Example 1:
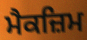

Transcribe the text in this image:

ਮੈਕਜ਼ਿਮ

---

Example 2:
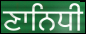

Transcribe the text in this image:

ਣਾਨਿਧੀ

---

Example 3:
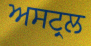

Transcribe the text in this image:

ਅਸਟ੍ਰਲ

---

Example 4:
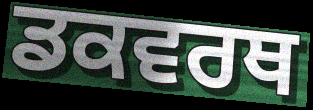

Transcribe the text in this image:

ਡਕਵਰਥ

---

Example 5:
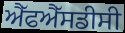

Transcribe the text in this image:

ਐੱਫਐੱਸਡੀਸੀ